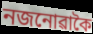
নজনোৱাকৈ